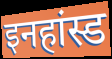
इनहांस्ड